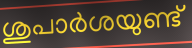
ശുപാർശയുണ്ട്